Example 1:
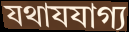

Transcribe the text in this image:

যথাযযাগ্য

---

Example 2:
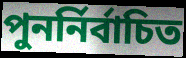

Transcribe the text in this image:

পুনর্নির্বাচিত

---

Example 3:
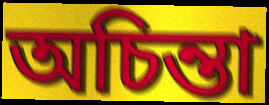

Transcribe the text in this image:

অচিন্তা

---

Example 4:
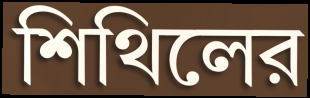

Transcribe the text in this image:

শিথিলের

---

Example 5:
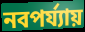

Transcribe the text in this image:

নবপর্য্যায়